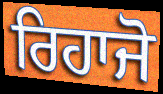
ਰਿਹਾਜੋ